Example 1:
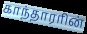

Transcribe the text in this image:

காந்தாரரின்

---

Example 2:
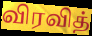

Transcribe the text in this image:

விரவித்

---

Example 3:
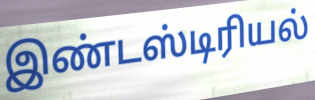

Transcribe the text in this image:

இண்டஸ்டிரியல்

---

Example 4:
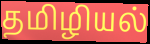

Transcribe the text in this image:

தமிழியல்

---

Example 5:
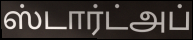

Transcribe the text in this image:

ஸ்டார்ட்அப்